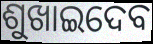
ଶୁଖାଇଦେବ